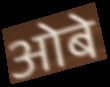
ओबे